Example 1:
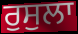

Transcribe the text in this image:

ਰੁਸੁਲਾ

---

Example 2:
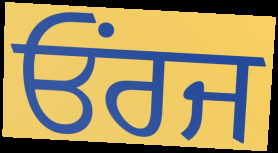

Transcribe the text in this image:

ਓਂਰਜ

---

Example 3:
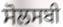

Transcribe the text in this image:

ਸੋਲਸਬੀ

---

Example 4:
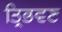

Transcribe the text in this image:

ਤ੍ਰਿਭਵਣ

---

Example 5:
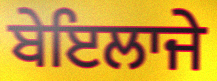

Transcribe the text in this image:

ਬੇਇਲਾਜੇ